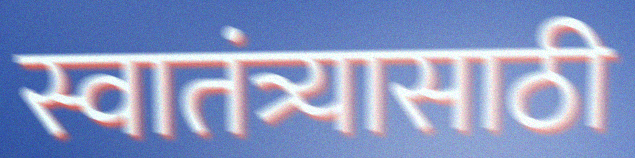
स्वातंत्र्यासाठी